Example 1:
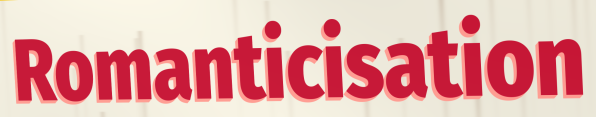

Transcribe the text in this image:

Romanticisation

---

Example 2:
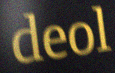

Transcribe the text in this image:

deol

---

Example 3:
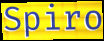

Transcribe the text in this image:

Spiro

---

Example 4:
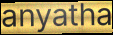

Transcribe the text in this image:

anyatha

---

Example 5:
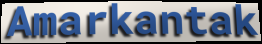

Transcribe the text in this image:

Amarkantak